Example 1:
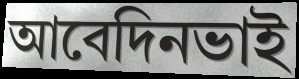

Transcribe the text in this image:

আবেদিনভাই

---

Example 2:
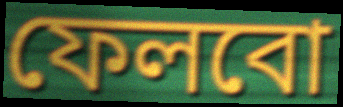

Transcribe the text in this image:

ফেলবো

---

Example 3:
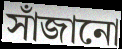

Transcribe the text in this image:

সাঁজানো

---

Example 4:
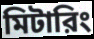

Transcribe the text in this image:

মিটারিং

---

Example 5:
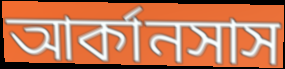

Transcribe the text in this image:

আর্কানসাস